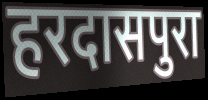
हरदासपुरा